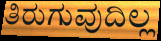
ತಿರುಗುವುದಿಲ್ಲ